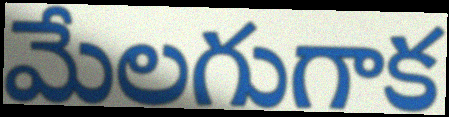
మేలగుగాక